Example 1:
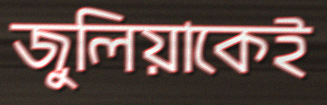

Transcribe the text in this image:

জুলিয়াকেই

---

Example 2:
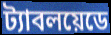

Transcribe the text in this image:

ট্যাবলয়েডে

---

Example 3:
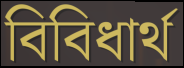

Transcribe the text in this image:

বিবিধার্থ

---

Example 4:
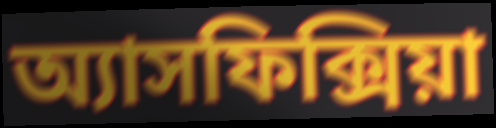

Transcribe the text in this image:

অ্যাসফিক্সিয়া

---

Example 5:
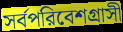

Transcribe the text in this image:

সর্বপরিবেশগ্রাসী